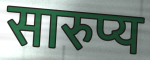
सारुप्य